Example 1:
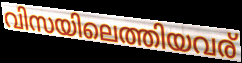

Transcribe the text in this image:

വിസയിലെത്തിയവര്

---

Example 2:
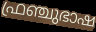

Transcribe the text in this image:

ഫ്രഞ്ചുഭാഷ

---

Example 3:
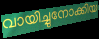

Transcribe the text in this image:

വായിച്ചുനോക്കിയ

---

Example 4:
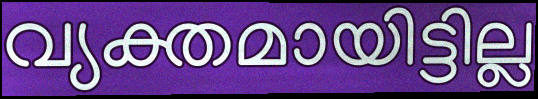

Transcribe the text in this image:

വ്യക്തമായിട്ടില്ല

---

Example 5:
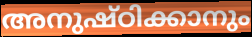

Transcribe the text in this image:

അനുഷ്ഠിക്കാനും